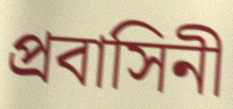
প্রবাসিনী